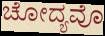
ಚೋದ್ಯವೊ